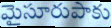
మైసూరుపాకు